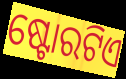
ଷ୍ଟୋରଟିଏ